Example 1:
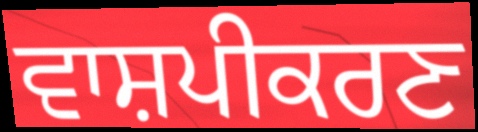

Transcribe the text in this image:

ਵਾਸ਼ਪੀਕਰਣ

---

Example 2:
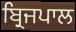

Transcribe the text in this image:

ਬ੍ਰਿਜਪਾਲ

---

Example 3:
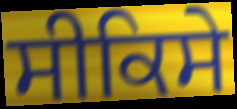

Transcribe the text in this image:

ਸੀਕਿਸੇ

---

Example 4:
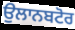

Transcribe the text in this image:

ਉਲਾਨਬਟੋਰ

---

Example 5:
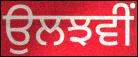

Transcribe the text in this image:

ਉਲਝਵੀਂ